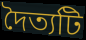
দৈত্যটি